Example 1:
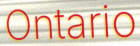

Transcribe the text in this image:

Ontario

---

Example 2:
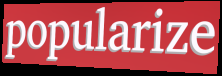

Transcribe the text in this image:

popularize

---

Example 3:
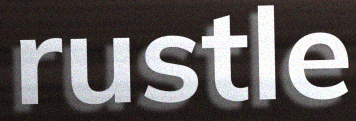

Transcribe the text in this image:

rustle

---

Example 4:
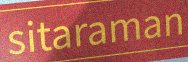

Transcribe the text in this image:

sitaraman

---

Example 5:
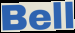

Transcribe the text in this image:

Bell